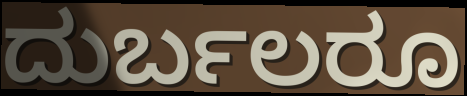
ದುರ್ಬಲರೂ